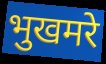
भुखमरे